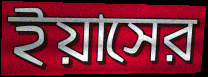
ইয়াসের